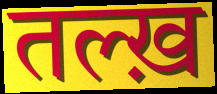
तल्ख़